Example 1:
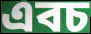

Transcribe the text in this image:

এবচ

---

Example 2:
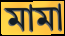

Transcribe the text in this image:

মামা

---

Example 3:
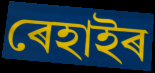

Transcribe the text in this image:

ৰেহাইৰ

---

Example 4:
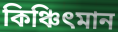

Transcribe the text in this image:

কিঞ্চিৎমান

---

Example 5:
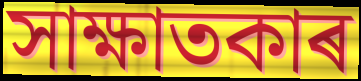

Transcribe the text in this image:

সাক্ষাতকাৰ